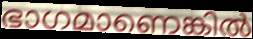
ഭാഗമാണെങ്കിൽ